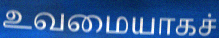
உவமையாகச்